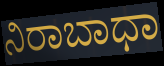
ನಿರಾಬಾಧಾ